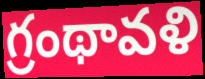
గ్రంథావళి